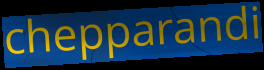
chepparandi